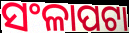
ସଂଳାପଟା